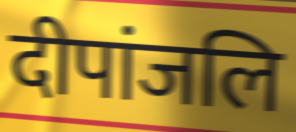
दीपांजलि